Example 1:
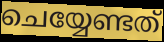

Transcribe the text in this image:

ചെയ്യേണ്ടത്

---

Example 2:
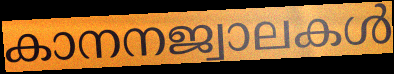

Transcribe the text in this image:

കാനനജ്വാലകൾ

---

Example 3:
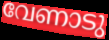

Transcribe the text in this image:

വേണാടു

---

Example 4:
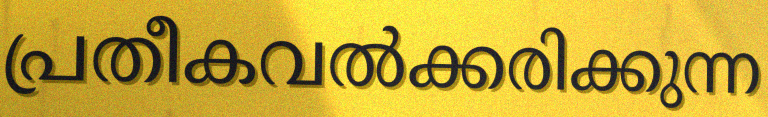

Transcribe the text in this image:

പ്രതീകവൽക്കരിക്കുന്ന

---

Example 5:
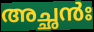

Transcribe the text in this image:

അച്ഛൻഃ